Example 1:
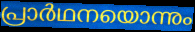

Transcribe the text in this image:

പ്രാർഥനയൊന്നും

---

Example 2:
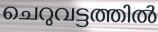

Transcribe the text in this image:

ചെറുവട്ടത്തിൽ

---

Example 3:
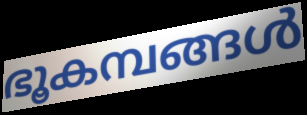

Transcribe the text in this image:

ഭൂകമ്പങ്ങൾ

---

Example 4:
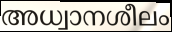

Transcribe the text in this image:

അധ്വാനശീലം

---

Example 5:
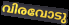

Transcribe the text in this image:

വിരവോടു